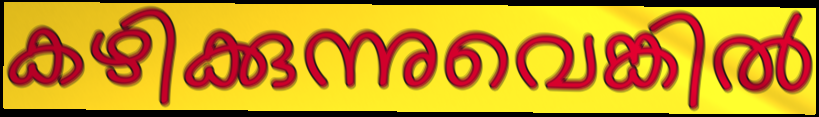
കഴിക്കുന്നുവെങ്കിൽ